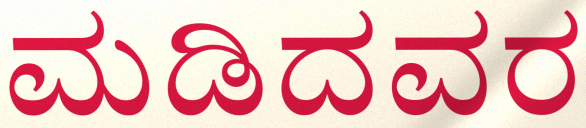
ಮಡಿದವರ